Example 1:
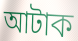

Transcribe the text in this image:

আটাক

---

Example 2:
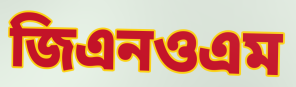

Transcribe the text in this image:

জিএনওএম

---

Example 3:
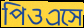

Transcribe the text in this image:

পিওএসে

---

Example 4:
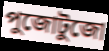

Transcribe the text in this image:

পুজোটুজো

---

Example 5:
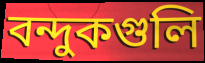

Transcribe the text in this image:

বন্দুকগুলি